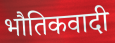
भौतिकवादी